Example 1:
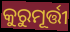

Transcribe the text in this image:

କୁରୁମୂର୍ତ୍ତୀ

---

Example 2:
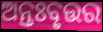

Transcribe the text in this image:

ଅନ୍ତଃବୃତ୍ତର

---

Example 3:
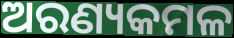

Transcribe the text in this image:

ଅରଣ୍ୟକମଳ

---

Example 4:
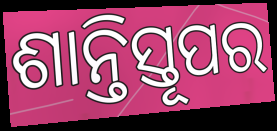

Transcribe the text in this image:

ଶାନ୍ତିସ୍ତୂପର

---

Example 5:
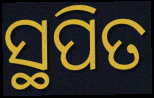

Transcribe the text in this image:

ସ୍ଥପିତ